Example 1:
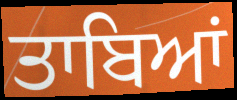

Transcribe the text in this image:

ਤਾਬਿਆਂ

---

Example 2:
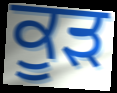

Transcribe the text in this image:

ਕੂੜ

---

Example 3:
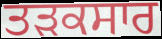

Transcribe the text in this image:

ਤੜਕਸਾਰ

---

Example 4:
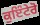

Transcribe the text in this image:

ਕੁਇੰਟੇਰੋ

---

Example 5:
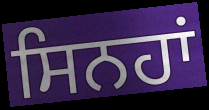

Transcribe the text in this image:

ਸਿਨਹਾਂ